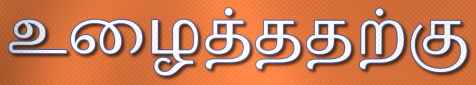
உழைத்ததற்கு